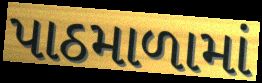
પાઠમાળામાં